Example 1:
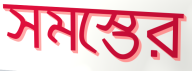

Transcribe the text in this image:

সমস্তের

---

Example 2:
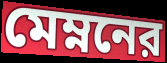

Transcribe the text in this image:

মেম্ননের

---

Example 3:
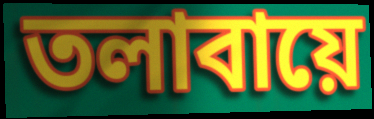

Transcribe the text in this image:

তলাবায়ে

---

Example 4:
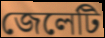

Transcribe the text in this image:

জেলেটি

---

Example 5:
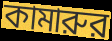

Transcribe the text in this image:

কামারুর